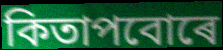
কিতাপবোৰে